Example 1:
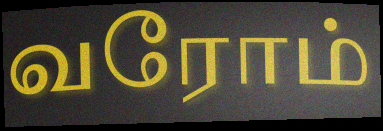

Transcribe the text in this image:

வரோம்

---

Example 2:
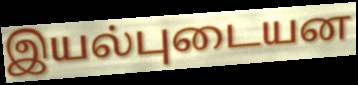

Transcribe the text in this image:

இயல்புடையன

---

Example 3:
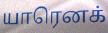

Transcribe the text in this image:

யாரெனக்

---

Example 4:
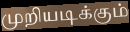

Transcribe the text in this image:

முறியடிக்கும்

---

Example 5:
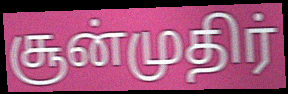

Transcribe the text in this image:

சூன்முதிர்